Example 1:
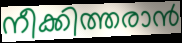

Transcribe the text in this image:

നീക്കിത്തരാൻ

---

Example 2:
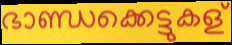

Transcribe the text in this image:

ഭാണ്ഡക്കെട്ടുകള്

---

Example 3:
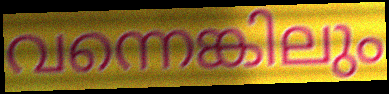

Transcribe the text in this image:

വന്നെങ്കിലും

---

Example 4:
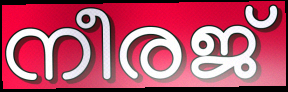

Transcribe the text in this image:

നീരജ്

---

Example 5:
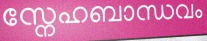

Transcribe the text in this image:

സ്നേഹബാന്ധവം